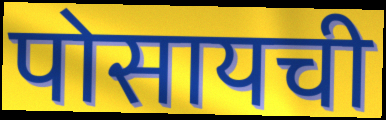
पोसायची